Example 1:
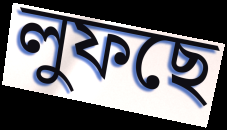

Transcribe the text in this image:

লুফছে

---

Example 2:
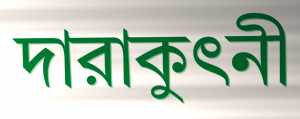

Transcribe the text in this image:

দারাকুৎনী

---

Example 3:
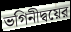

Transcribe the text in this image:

ভগিনীদ্বয়ের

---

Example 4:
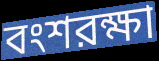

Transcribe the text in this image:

বংশরক্ষা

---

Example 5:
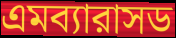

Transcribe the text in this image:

এমব্যারাসড